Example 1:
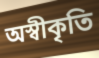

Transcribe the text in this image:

অস্বীকৃতি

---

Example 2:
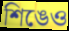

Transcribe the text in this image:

শিঙেও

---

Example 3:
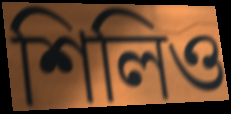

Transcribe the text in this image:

শিলিও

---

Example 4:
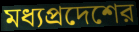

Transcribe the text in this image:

মধ্যপ্রদেশের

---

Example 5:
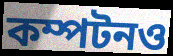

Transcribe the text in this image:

কম্পটনও